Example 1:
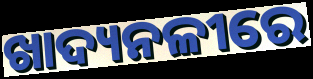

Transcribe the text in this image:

ଖାଦ୍ୟନଳୀରେ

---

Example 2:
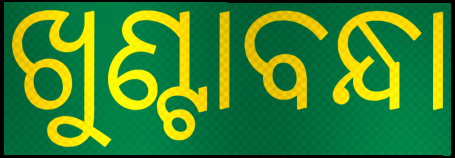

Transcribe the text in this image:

ଖୁଣ୍ଟାବନ୍ଧା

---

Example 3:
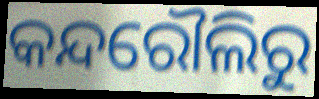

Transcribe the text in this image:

କନ୍ଦରୌଲିରୁ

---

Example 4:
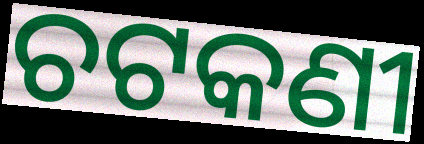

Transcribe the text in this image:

ଚଟକଣୀ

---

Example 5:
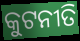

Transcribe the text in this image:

କୁଟନୀତି